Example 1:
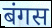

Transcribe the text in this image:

बंगस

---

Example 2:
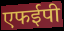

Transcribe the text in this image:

एफईपी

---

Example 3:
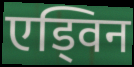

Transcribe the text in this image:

एड्विन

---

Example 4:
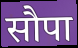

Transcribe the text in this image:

सौपा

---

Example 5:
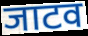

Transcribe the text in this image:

जाटव